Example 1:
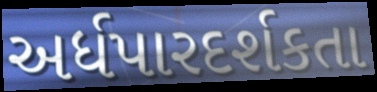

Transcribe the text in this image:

અર્ધપારદર્શકતા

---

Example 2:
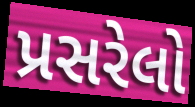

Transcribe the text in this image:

પ્રસરેલો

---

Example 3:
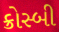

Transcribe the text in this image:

ક્રોસ્બી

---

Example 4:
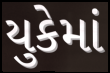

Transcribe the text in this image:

યુકેમાં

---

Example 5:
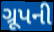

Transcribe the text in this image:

ગ્રૂપની